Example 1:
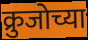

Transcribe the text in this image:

क्रुजोच्या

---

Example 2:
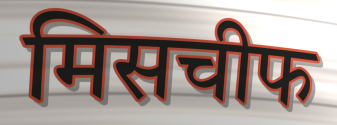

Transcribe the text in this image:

मिसचीफ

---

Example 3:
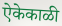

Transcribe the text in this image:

ऐकेकाळी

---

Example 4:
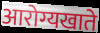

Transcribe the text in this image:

आरोग्यखाते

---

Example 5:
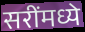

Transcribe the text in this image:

सरींमध्ये